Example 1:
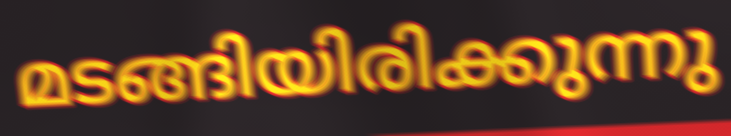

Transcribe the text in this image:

മടങ്ങിയിരിക്കുന്നു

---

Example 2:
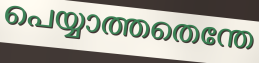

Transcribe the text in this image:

പെയ്യാത്തതെന്തേ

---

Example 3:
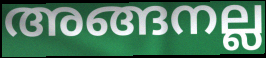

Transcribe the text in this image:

അങ്ങനല്ല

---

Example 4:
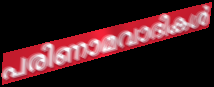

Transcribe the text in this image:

പരിണാമവാദികൾ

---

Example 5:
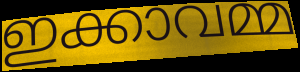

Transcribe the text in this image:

ഇക്കാവമ്മ